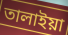
তালাইয়া